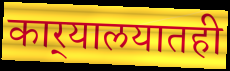
कार्यालयातही